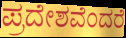
ಪ್ರದೇಶವೆಂದರೆ